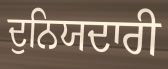
ਦੁਨਿਯਦਾਰੀ